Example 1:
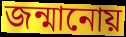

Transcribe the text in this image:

জন্মানোয়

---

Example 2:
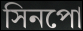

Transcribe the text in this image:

সিনপো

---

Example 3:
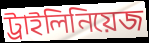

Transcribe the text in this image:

ট্রাইলিনিয়েজ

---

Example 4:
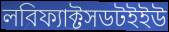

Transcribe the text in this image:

লবিফ্যাক্টসডটইইউ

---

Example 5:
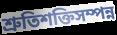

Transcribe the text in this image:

শ্রুতিশক্তিসম্পন্ন